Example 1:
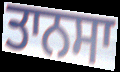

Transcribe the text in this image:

ਤਾਨਸਾ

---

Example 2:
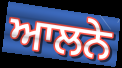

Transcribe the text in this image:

ਆਲਨੇ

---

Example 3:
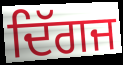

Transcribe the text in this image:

ਦਿੱਗਜ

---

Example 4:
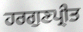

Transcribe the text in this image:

ਹਰਗੁਣਪ੍ਰੀਤ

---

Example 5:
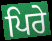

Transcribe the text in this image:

ਪਿਰੇ